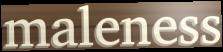
maleness